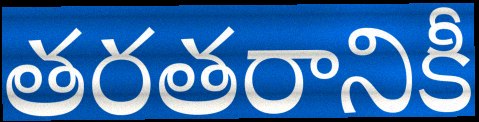
తరతరానికీ